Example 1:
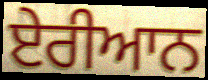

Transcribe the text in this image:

ਏਰੀਆਨ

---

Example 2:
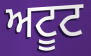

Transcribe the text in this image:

ਅਟੂਟ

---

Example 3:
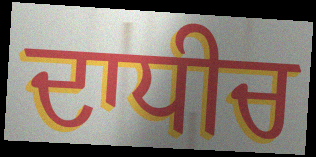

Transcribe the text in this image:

ਦਾਧੀਚ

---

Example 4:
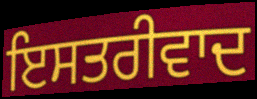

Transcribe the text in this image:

ਇਸਤਰੀਵਾਦ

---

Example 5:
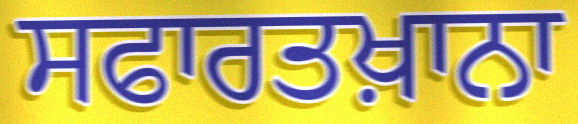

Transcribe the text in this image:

ਸਫਾਰਤਖ਼ਾਨਾ